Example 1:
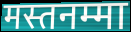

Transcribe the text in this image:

मस्तनम्मा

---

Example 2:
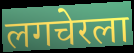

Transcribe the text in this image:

लगचेरला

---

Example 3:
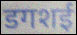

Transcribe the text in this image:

डगशई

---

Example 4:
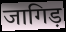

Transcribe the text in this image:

जागिड़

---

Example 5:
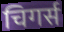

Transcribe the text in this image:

चिगर्स